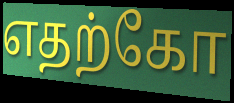
எதற்கோ